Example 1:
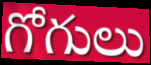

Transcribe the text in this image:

గోగులు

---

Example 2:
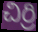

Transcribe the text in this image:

చిర్రి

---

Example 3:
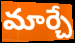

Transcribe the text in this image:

మార్చే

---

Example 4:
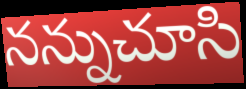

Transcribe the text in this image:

నన్నుచూసి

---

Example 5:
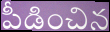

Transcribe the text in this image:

పీడించిన